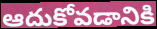
ఆదుకోవడానికి